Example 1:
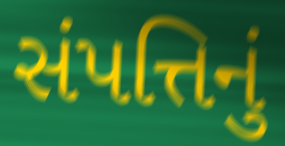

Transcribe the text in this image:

સંપત્તિનું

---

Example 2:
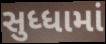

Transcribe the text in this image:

સુધ્ધામાં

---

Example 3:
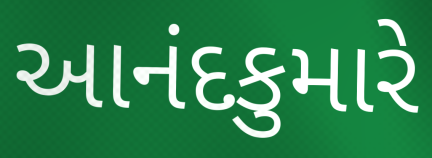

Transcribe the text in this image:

આનંદકુમારે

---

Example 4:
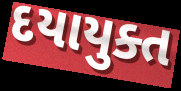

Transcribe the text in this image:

દયાયુક્ત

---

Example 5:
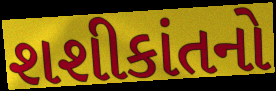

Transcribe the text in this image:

શશીકાંતનો